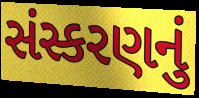
સંસ્કરણનું